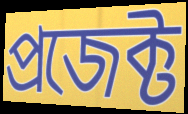
প্ৰজেক্ট